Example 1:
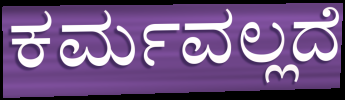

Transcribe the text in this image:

ಕರ್ಮವಲ್ಲದೆ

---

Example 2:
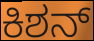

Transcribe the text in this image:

ಕಿಶನ್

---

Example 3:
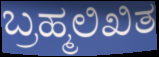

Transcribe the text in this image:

ಬ್ರಹ್ಮಲಿಖಿತ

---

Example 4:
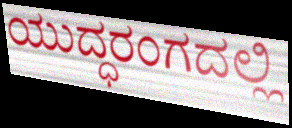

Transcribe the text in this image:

ಯುದ್ಧರಂಗದಲ್ಲಿ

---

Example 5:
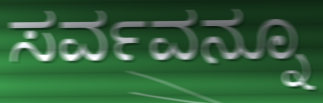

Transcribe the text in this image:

ಸರ್ವವನ್ನೂ